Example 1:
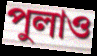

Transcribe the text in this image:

পুলাও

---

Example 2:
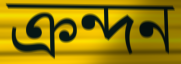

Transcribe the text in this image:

ক্রন্দন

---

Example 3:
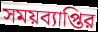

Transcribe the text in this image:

সময়ব্যাপ্তির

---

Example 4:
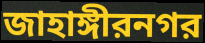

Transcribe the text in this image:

জাহাঙ্গীরনগর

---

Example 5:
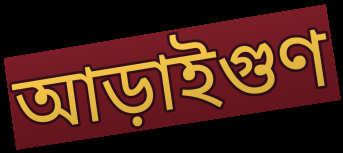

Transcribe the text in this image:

আড়াইগুণ